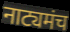
नाट्यमंच